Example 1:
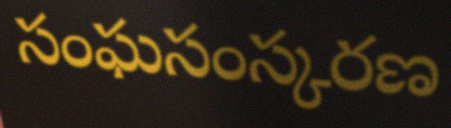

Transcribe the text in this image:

సంఘసంస్కరణ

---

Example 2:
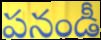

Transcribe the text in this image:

పనండీ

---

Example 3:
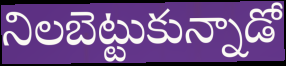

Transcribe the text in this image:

నిలబెట్టుకున్నాడో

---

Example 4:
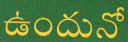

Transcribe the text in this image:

ఉందునో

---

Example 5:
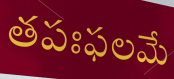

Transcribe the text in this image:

తపఃఫలమే